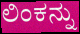
ಲಿಂಕನ್ನು